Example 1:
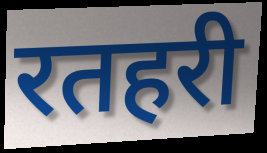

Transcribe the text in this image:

रतहरी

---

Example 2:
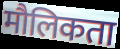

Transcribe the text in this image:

मौलिकता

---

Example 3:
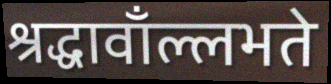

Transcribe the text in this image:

श्रद्धावाँल्लभते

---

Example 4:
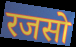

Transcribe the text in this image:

रजसो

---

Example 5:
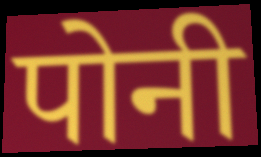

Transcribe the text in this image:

पोनी